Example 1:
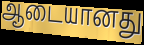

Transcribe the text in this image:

ஆடையானது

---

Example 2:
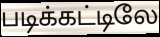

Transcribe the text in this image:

படிக்கட்டிலே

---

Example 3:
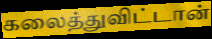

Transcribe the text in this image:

கலைத்துவிட்டான்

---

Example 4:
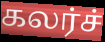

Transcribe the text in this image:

கலர்ச்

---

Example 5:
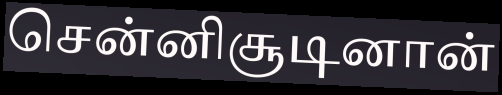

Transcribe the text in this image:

சென்னிசூடினான்